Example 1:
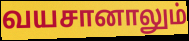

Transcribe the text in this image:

வயசானாலும்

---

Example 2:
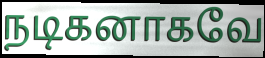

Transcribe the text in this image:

நடிகனாகவே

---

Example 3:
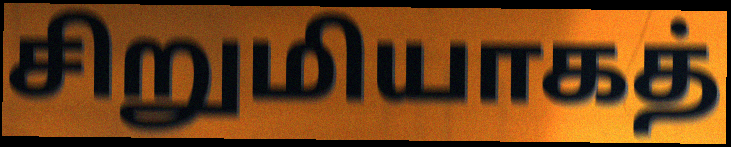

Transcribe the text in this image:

சிறுமியாகத்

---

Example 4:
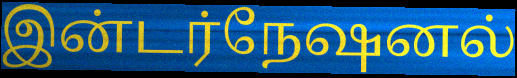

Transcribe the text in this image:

இன்டர்நேஷனல்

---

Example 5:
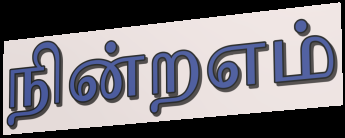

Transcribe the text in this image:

நின்றஎம்